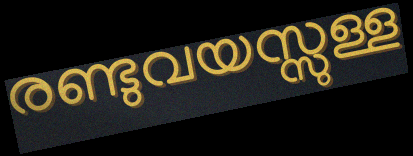
രണ്ടുവയസ്സുള്ള